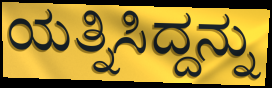
ಯತ್ನಿಸಿದ್ದನ್ನು